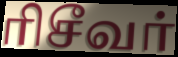
ரிசீவர்